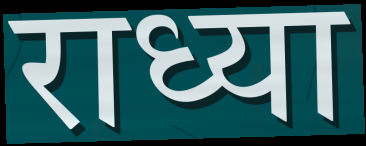
राध्या